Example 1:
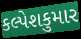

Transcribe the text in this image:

કલ્પેશકુમાર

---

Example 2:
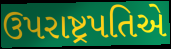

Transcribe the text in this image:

ઉપરાષ્ટ્રપતિએ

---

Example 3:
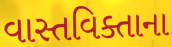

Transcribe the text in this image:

વાસ્તવિક્તાના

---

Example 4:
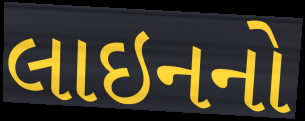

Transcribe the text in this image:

લાઇનનો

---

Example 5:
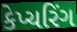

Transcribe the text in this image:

કેપ્ચરિંગ